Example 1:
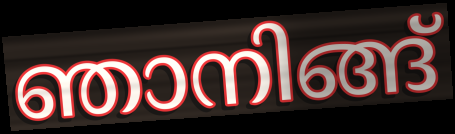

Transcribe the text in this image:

ഞാനിങ്ങ്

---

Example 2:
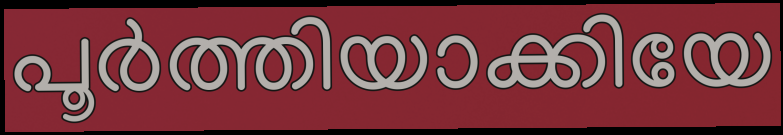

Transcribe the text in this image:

പൂർത്തിയാക്കിയേ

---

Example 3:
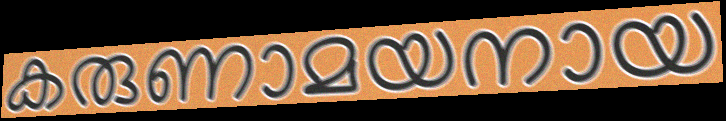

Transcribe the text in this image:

കരുണാമയനായ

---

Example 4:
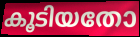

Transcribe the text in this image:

കൂടിയതോ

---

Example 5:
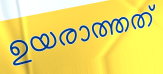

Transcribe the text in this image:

ഉയരാത്തത്